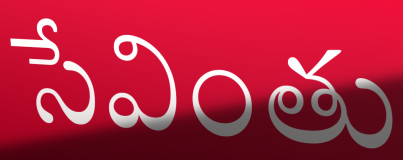
సేవింతు